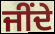
ਜੀਂਦੇ